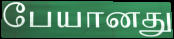
பேயானது